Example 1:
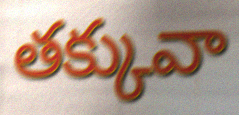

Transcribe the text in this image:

తక్కువా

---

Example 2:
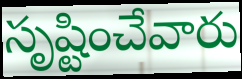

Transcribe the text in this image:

సృష్టించేవారు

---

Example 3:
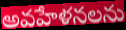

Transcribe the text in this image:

అవహేళనలను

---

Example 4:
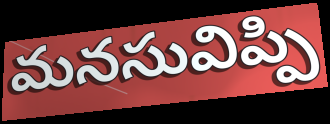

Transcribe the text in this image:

మనసువిప్పి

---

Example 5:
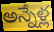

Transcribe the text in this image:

అన్నేళ్ల